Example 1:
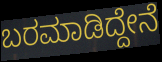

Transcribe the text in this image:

ಬರಮಾಡಿದ್ದೇನೆ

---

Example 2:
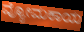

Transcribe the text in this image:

ವ್ಯೋಮಕಾಯ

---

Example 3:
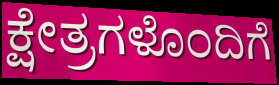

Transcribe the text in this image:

ಕ್ಷೇತ್ರಗಳೊಂದಿಗೆ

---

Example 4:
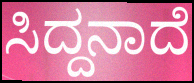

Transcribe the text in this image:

ಸಿದ್ದನಾದೆ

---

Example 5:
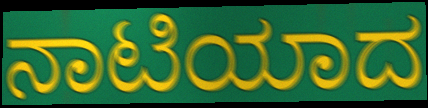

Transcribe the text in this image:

ನಾಟಿಯಾದ